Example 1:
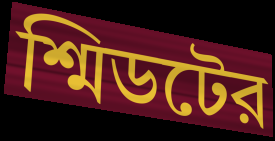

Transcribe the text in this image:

শ্মিডটের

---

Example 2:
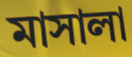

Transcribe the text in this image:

মাসালা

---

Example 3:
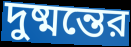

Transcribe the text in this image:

দুষ্মন্তের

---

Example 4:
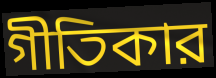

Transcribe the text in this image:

গীতিকার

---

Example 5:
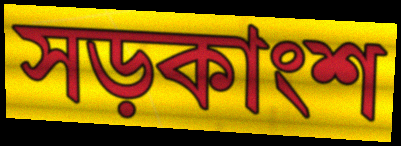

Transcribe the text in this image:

সড়কাংশ